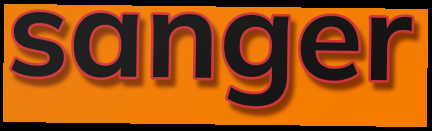
sanger